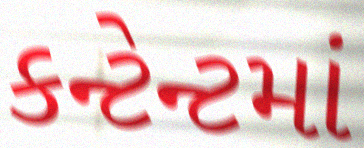
કન્ટેન્ટમાં